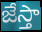
జేస్తా